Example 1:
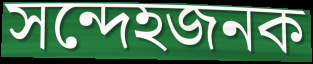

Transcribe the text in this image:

সন্দেহজনক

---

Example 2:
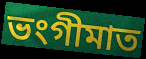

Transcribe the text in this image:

ভংগীমাত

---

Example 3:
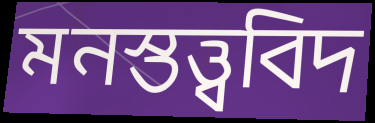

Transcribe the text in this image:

মনস্তত্ত্ববিদ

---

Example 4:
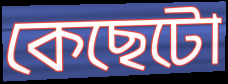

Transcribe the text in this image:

কেছেটো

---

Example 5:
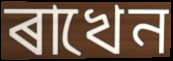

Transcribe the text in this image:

ৰাখেন